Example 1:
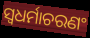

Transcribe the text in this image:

ସ୍ୱଧର୍ମାଚରଣଂ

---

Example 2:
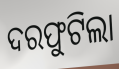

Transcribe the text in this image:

ଦରଫୁଟିଲା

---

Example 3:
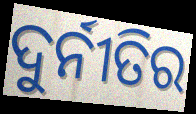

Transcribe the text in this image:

ଦୁର୍ନୀତିର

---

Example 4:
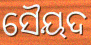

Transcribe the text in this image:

ସୈୟଦ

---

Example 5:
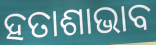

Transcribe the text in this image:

ହତାଶାଭାବ